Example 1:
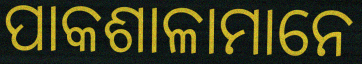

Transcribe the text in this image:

ପାକଶାଳାମାନେ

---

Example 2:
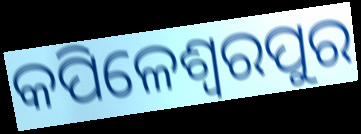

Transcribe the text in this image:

କପିଳେଶ୍ୱରପୁର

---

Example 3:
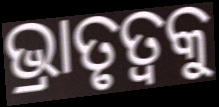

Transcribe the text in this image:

ଭ୍ରାତୃତ୍ୱକୁ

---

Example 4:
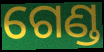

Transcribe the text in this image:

ଗେଣ୍ଡ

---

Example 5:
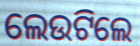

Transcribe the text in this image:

ଲେଉଟିଲେ